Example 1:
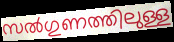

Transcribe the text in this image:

സൽഗുണത്തിലുള്ള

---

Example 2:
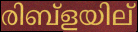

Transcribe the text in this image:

രിബ്ളയില്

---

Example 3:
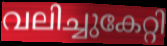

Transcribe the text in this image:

വലിച്ചുകേറ്റി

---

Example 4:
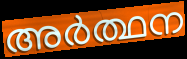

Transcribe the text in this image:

അർത്ഥന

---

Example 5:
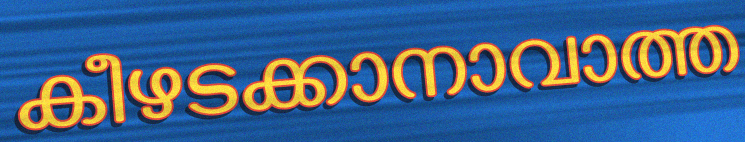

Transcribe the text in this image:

കീഴടക്കാനാവാത്ത